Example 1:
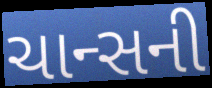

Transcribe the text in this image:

ચાન્સની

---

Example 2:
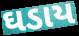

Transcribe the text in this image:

ઘડાય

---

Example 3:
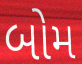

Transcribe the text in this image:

બોમ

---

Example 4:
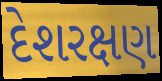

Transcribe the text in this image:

દેશરક્ષણ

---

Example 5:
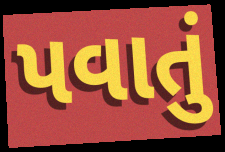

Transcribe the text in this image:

પવાતું